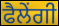
ਫੈਲੇਂਗੀ